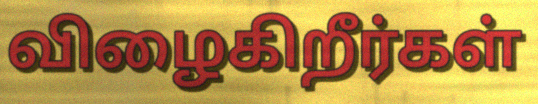
விழைகிறீர்கள்